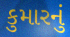
કુમારનું